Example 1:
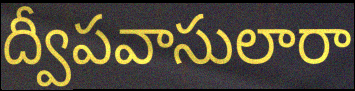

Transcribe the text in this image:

ద్వీపవాసులారా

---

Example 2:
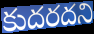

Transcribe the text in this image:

కుదరదని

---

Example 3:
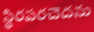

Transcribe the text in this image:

స్థిరపరచెదను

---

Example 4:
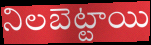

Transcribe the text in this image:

నిలబెట్టాయి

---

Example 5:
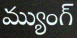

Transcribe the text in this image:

మ్యుంగ్